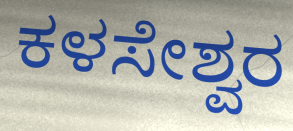
ಕಳಸೇಶ್ವರ